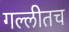
गल्लीतच